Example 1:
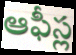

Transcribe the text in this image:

ఆఫీస్ల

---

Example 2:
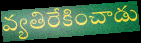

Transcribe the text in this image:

వ్యతిరేకించాడు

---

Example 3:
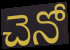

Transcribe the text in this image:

చెనో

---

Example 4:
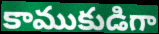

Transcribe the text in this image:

కాముకుడిగా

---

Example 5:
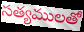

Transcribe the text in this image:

సత్యములతో